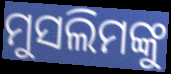
ମୁସଲିମଙ୍କୁ